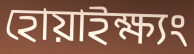
হোয়াইক্ষ্যং